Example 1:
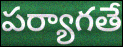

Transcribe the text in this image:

పర్యాగతే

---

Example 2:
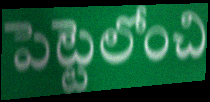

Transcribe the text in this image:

పెట్టెలోంచి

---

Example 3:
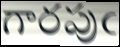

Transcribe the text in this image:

గారపుఁ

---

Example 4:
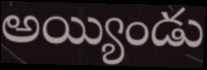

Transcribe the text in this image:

అయ్యిండు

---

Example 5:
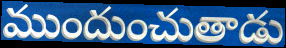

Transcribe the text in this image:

ముందుంచుతాడు